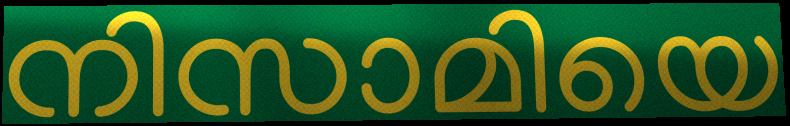
നിസാമിയെ